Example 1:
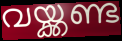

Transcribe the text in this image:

വയ്ക്കണ്ട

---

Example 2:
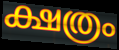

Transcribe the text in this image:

ക്ഷത്രം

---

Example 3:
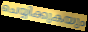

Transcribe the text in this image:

ചെയ്യിക്കുകയും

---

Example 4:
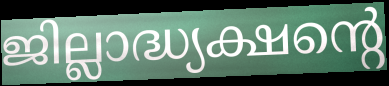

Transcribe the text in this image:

ജില്ലാദ്ധ്യക്ഷന്റെ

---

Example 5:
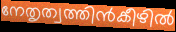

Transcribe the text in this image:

നേതൃത്വത്തിൻകീഴിൽ